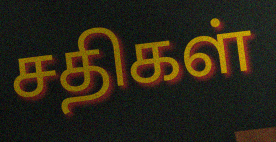
சதிகள்